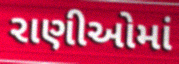
રાણીઓમાં